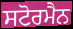
ਸਟੋਰਮੈਨ